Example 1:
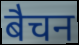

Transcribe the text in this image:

बैचन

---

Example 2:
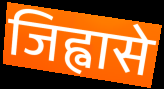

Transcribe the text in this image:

जिह्वासे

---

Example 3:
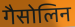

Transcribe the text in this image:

गैसोलिन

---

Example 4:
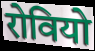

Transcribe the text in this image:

रोवियो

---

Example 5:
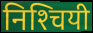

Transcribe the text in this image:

निश्चियी